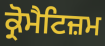
ਕ੍ਰੋਮੈਟਿਜ਼ਮ